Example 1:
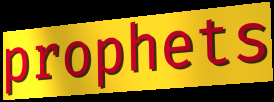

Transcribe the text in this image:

prophets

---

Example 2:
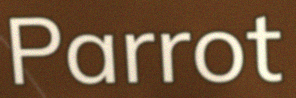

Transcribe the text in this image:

Parrot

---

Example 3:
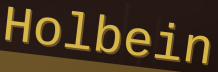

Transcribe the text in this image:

Holbein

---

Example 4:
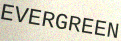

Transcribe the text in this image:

EVERGREEN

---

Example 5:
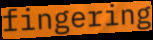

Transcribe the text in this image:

fingering